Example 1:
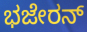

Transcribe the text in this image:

ಭಜೇರನ್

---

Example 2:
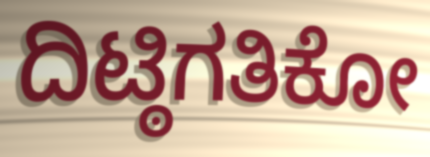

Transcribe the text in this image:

ದಿಟ್ಠಿಗತಿಕೋ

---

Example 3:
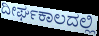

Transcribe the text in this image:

ದೀರ್ಘಕಾಲದಲ್ಲಿ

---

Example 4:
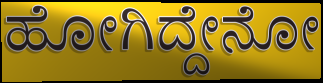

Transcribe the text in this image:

ಹೋಗಿದ್ದೇನೋ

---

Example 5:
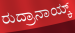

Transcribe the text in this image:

ರುದ್ರಾನಾಯ್ಕ್